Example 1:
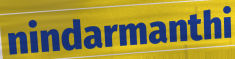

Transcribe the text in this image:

nindarmanthi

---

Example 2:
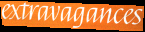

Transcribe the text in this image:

extravagances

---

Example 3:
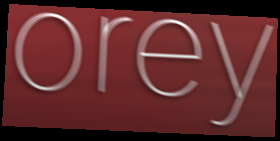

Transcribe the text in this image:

orey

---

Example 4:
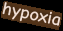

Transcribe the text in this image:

hypoxia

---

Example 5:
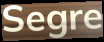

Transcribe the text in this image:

Segre